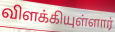
விளக்கியுள்ளார்